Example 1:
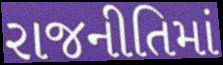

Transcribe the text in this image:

રાજનીતિમાં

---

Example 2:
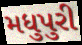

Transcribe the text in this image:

મધુપુરી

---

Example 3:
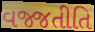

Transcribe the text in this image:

વજ્જતીતિ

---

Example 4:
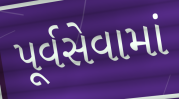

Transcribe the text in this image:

પૂર્વસેવામાં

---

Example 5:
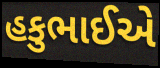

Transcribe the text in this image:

હકુભાઈએ